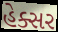
હેક્સર